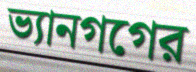
ভ্যানগগের